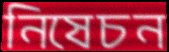
নিষেচন